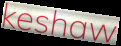
keshaw